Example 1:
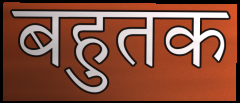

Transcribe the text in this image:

बहुतक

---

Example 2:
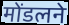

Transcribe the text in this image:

मोंडलने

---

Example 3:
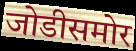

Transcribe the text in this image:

जोडीसमोर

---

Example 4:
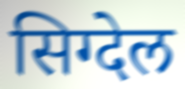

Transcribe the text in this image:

सिग्देल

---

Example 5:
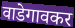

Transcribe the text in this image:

वाडेगावकर